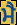
ਮੈ